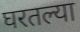
घरतल्या